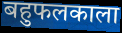
बहुफलकाला